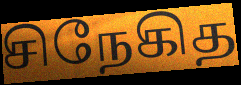
சிநேகித